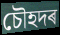
চৌহদৰ